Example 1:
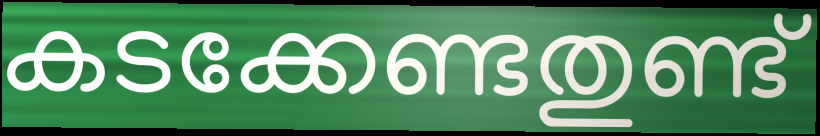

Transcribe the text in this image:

കടക്കേണ്ടതുണ്ട്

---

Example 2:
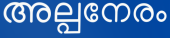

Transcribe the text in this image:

അല്പനേരം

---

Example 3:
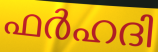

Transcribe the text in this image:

ഫർഹദി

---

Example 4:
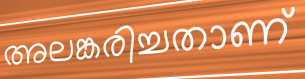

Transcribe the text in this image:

അലങ്കരിച്ചതാണ്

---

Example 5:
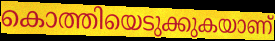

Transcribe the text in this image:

കൊത്തിയെടുക്കുകയാണ്